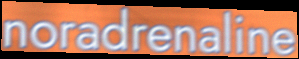
noradrenaline